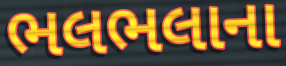
ભલભલાના